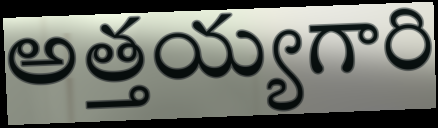
అత్తయ్యగారి